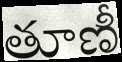
తూణీ